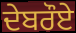
ਦੇਬਰੌਏ